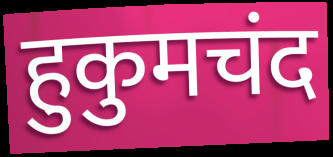
हुकुमचंद